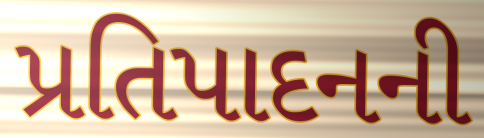
પ્રતિપાદનની